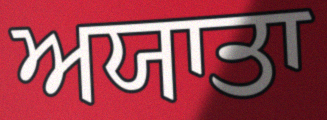
ਅਯਾਤਾ